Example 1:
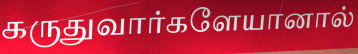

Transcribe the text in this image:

கருதுவார்களேயானால்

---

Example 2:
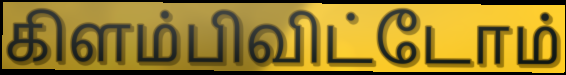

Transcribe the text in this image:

கிளம்பிவிட்டோம்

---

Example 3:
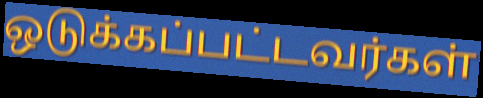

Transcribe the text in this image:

ஒடுக்கப்பட்டவர்கள்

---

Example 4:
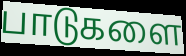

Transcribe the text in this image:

பாடுகளை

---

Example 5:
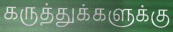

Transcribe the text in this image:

கருத்துக்களுக்கு